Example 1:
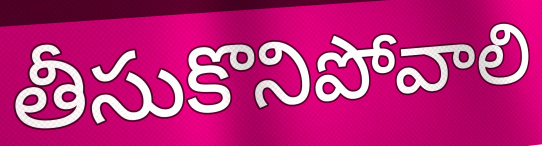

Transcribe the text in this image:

తీసుకొనిపోవాలి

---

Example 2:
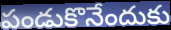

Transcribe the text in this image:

పండుకొనేందుకు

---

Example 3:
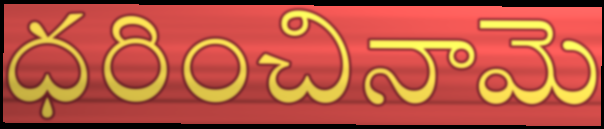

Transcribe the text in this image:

ధరించినామె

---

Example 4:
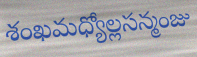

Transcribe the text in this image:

శంఖమధ్యోల్లసన్మంజు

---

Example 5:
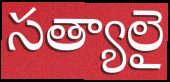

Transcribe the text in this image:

సత్యాలై